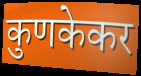
कुणकेकर